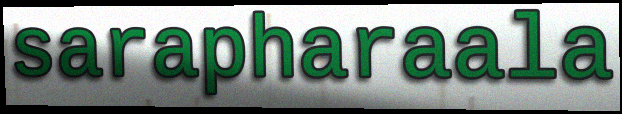
sarapharaala